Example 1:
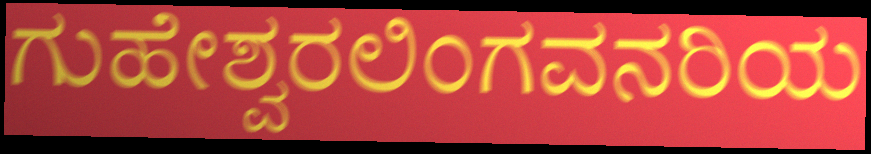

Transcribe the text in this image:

ಗುಹೇಶ್ವರಲಿಂಗವನರಿಯ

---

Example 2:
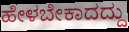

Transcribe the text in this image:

ಹೇಳಬೇಕಾದದ್ದು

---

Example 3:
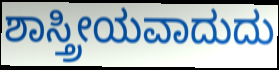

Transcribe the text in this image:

ಶಾಸ್ತ್ರೀಯವಾದುದು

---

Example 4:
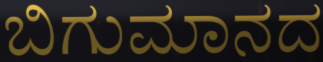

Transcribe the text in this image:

ಬಿಗುಮಾನದ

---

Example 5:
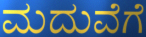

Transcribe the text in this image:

ಮದುವೆಗೆ